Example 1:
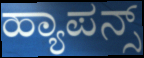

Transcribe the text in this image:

ಹ್ಯಾಪನ್ಸ್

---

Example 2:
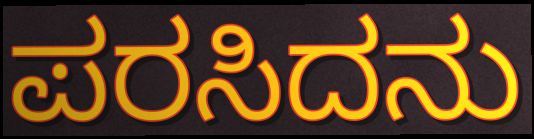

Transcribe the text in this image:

ಪರಸಿದನು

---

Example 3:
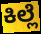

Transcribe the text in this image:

ಕಿಲ್ಲೆ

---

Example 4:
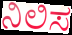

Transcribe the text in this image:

ನಿಲಿಸ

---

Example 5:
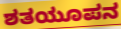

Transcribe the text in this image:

ಶತಯೂಪನ